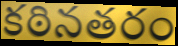
కఠినతరం